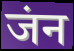
जंन